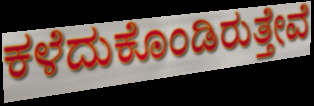
ಕಳೆದುಕೊಂಡಿರುತ್ತೇವೆ